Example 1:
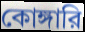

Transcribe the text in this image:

কোঙ্গারি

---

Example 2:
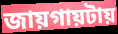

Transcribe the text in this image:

জায়গায়টায়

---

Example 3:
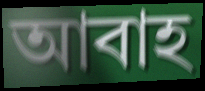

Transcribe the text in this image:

আবাহ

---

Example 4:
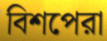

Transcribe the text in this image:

বিশপেরা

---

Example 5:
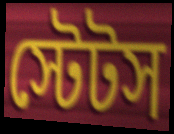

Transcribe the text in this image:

স্টেটস